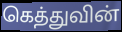
கெத்துவின்